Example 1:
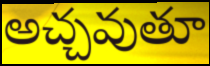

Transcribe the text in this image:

అచ్చవుతూ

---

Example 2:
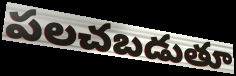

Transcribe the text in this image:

పలచబడుతూ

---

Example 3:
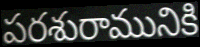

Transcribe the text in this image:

పరశురామునికి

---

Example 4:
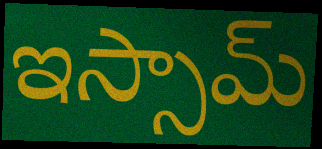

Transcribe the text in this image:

ఇస్సామ్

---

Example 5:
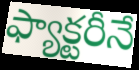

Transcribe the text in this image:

ఫ్యాక్టరీనే